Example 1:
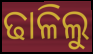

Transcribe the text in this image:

ଢାଳିଲୁ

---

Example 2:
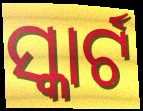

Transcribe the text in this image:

ସ୍କାର୍ଟ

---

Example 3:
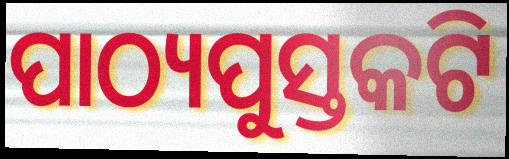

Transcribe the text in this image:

ପାଠ୍ୟପୁସ୍ତକଟି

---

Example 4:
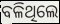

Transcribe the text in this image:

ବଳିଥିଲେ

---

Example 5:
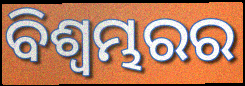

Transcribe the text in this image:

ବିଶ୍ଵମ୍ଭରର